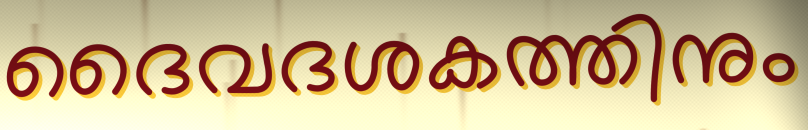
ദൈവദശകത്തിനും